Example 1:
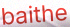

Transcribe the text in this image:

baithe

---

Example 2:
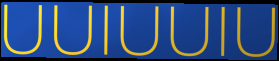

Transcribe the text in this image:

UUIUUIU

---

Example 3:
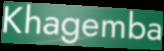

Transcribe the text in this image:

Khagemba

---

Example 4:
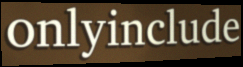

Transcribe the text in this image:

onlyinclude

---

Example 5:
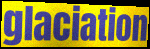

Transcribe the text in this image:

glaciation